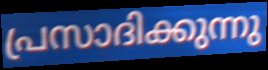
പ്രസാദിക്കുന്നു